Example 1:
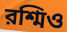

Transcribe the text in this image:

রশ্মিও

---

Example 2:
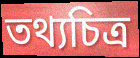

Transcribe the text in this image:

তথ্যচিত্র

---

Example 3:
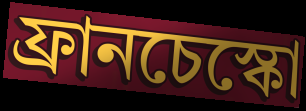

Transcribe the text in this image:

ফ্রানচেস্কো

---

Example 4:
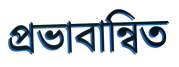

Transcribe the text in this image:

প্রভাবান্বিত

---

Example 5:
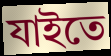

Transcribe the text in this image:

যাইতে